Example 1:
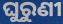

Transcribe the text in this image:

ଘୁରୁଣୀ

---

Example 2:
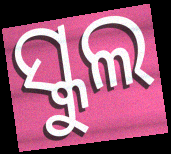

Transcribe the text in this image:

ସ୍କୁଲ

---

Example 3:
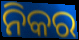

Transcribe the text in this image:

ନିକର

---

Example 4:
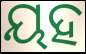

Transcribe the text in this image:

ୟହ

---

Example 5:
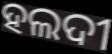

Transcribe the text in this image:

ହଲଦୀ